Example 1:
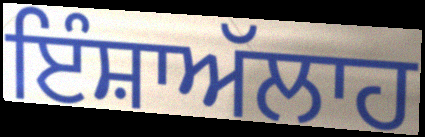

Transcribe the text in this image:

ਇੰਸ਼ਾਅੱਲਾਹ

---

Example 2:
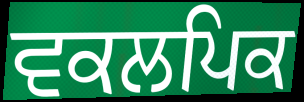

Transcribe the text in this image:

ਵਕਲਪਿਕ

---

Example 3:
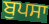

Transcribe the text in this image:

ਬੁਪਸਾ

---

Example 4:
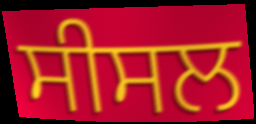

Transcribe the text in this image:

ਸੀਸਲ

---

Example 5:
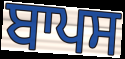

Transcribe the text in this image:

ਬਾਪਸ